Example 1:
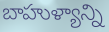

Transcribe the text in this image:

బాహుళ్యాన్ని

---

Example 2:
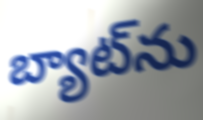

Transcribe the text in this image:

బ్యాట్‌ను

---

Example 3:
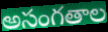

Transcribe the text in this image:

అసంగతాల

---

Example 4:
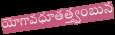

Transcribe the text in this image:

యోగావధూతత్త్వంబున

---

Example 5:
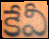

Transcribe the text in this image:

కేవీ